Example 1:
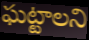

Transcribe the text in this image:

ఘట్టాలని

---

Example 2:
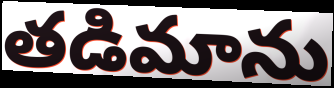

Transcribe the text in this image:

తడిమాను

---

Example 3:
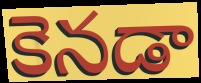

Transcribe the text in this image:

కెనడా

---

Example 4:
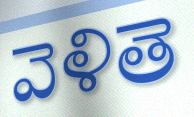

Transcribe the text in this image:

వెళితె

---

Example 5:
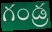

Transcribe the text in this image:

గండ్ర